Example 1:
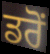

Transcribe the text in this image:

ਡਰੋਂ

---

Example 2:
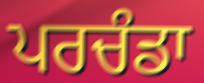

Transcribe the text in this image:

ਪਰਚੰਡਾ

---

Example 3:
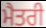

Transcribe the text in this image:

ਮੈਤਰੀ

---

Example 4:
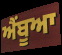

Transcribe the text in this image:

ਐਂਬੂਆ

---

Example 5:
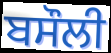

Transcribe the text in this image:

ਬਸੌਲੀ